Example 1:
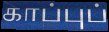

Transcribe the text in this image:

காப்புப்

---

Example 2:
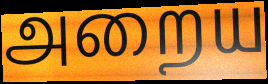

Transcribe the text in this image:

அறைய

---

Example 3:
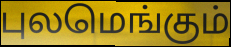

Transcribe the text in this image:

புலமெங்கும்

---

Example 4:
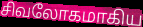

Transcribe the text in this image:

சிவலோகமாகிய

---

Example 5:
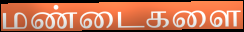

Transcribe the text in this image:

மண்டைகளை